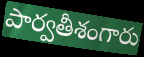
పార్వతీశంగారు